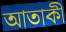
আতাকী